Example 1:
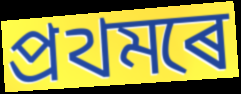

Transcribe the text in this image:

প্ৰথমৰে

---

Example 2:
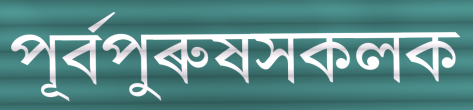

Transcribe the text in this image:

পূৰ্বপুৰুষসকলক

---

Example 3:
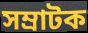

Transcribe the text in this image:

সম্ৰাটক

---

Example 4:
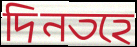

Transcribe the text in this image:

দিনতহে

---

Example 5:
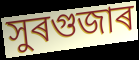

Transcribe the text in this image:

সুৰগুজাৰ